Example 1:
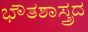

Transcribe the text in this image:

ಭೌತಶಾಸ್ತ್ರದ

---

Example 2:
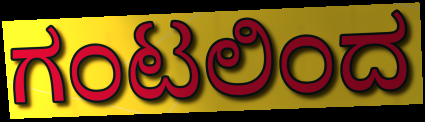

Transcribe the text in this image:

ಗಂಟಲಿಂದ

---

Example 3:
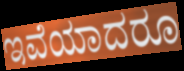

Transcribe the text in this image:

ಇವೆಯಾದರೂ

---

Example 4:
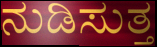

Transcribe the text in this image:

ನುಡಿಸುತ್ತ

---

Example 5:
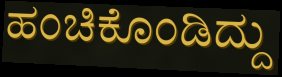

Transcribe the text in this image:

ಹಂಚಿಕೊಂಡಿದ್ದು